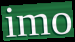
imo